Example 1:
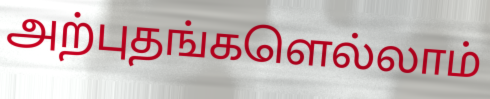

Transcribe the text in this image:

அற்புதங்களெல்லாம்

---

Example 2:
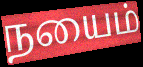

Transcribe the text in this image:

நயைம்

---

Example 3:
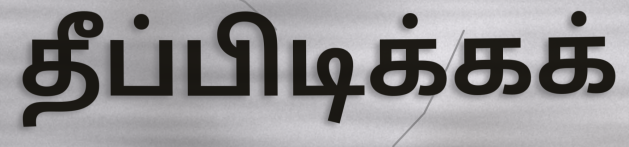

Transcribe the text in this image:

தீப்பிடிக்கக்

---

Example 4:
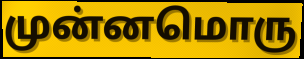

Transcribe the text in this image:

முன்னமொரு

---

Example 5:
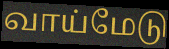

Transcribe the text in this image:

வாய்மேடு